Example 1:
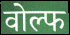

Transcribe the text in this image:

वोल्फ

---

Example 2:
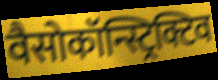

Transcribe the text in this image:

वैसोकॉन्स्ट्रिक्टिव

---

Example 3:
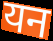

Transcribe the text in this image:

यन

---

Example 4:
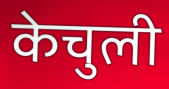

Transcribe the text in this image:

केचुली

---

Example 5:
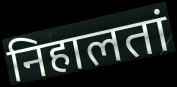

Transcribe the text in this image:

निहालतां